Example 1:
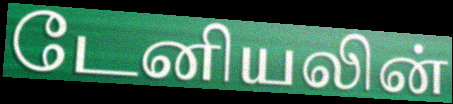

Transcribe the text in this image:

டேனியலின்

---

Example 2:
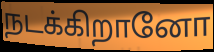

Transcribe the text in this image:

நடக்கிறானோ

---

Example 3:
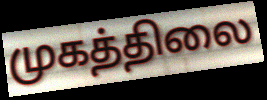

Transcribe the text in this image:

முகத்திலை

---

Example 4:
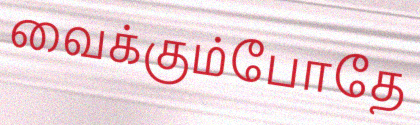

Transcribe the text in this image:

வைக்கும்போதே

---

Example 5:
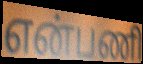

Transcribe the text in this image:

என்பணி